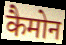
कैमोन